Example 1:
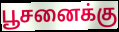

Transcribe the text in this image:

பூசனைக்கு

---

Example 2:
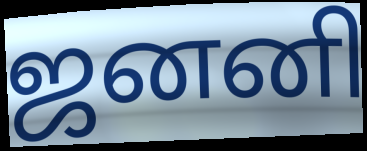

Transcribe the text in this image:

ஜனனி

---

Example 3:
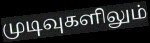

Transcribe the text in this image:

முடிவுகளிலும்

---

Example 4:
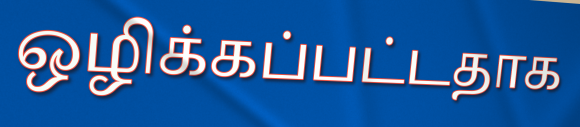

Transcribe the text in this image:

ஒழிக்கப்பட்டதாக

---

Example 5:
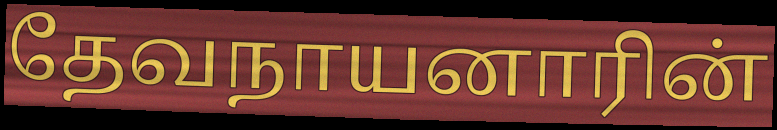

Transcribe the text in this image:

தேவநாயனாரின்